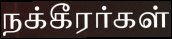
நக்கீரர்கள்